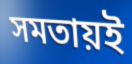
সমতায়ই